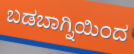
ಬಡಬಾಗ್ನಿಯಿಂದ